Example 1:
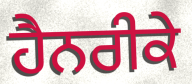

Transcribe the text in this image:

ਹੈਨਰੀਕੇ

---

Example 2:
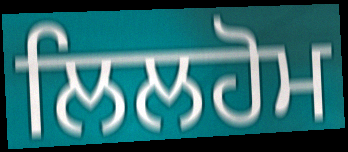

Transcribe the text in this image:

ਲਿਲਹੋਮ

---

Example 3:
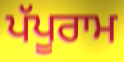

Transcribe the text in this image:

ਪੱਪੂਰਾਮ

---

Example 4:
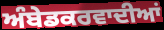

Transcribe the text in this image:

ਅੰਬੇਡਕਰਵਾਦੀਆਂ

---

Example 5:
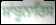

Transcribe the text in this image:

ਸਾਂਬੂਨਾਰਿਸ